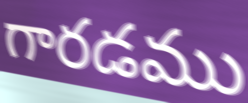
గారడము